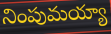
నింపుమయ్యా